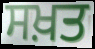
ਸਖ਼ਤ